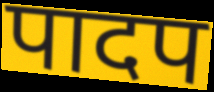
पादप